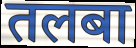
तलबा